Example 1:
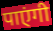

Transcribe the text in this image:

पाएंगी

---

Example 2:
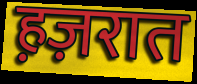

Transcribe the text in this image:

ह़ज़रात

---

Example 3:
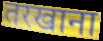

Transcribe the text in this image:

तरखाना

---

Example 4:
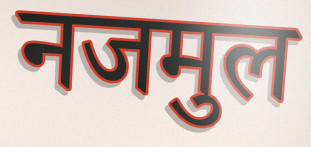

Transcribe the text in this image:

नजमुल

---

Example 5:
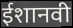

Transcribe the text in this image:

ईशानवी